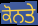
ਕੋਨਤੇ